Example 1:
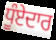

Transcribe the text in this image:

ਧੂੰਏਦਾਰ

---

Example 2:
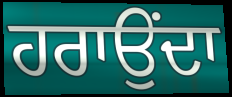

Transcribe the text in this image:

ਹਰਾਉਂਦਾ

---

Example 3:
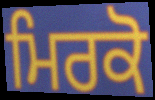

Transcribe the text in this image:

ਮਿਰਕੋ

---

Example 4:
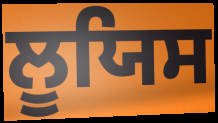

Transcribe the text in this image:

ਲੂਯਿਸ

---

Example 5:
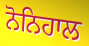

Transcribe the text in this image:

ਨੋਨਿਹਾਲ